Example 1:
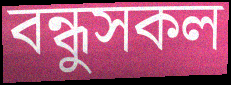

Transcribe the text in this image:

বন্ধুসকল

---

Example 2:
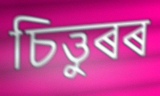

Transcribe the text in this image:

চিত্তুৰৰ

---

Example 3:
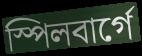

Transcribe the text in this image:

স্পিলবাৰ্গে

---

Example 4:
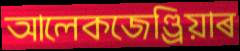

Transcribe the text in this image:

আলেকজেণ্ড্ৰিয়াৰ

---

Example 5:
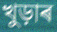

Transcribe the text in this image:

খুড়াৰ